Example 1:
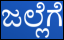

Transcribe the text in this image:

ಜಲ್ಲೆಗೆ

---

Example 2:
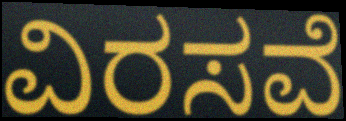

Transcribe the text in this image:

ವಿರಸವೆ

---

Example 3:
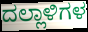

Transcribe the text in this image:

ದಲ್ಲಾಳಿಗಳ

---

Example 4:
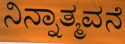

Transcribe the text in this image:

ನಿನ್ನಾತ್ಮವನೆ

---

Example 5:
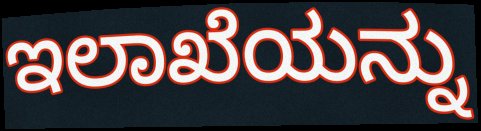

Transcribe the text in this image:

ಇಲಾಖೆಯನ್ನು